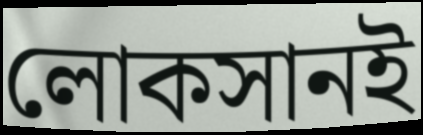
লোকসানই